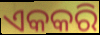
ଏକକରି